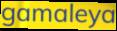
gamaleya